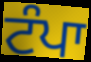
ਟੰਪਾ